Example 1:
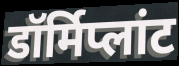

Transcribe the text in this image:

डॉर्मिप्लांट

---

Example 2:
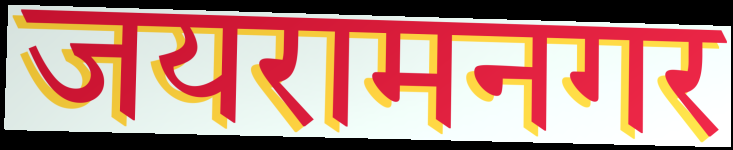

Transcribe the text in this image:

जयरामनगर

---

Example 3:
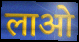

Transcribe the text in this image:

लाओ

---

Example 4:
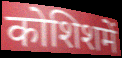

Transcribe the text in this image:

कोशिशमें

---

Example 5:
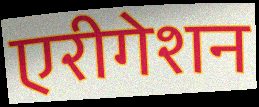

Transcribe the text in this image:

एरीगेशन